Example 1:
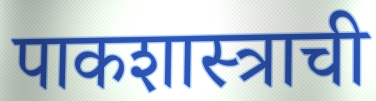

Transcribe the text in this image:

पाकशास्त्राची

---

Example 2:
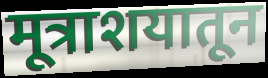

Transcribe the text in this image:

मूत्राशयातून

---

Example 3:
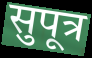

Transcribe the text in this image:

सुपूत्र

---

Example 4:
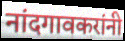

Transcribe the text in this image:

नांदगावकरांनी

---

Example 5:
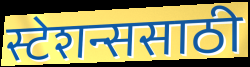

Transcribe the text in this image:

स्टेशन्ससाठी